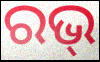
ରଭ୍